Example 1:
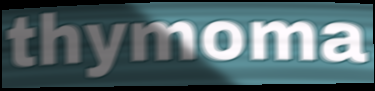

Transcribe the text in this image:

thymoma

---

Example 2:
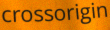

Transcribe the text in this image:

crossorigin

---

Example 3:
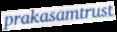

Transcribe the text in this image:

prakasamtrust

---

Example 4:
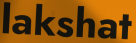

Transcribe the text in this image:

lakshat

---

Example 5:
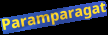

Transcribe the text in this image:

Paramparagat